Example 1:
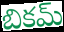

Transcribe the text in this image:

బికమ్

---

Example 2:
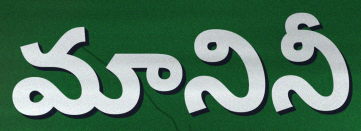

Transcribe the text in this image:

మానినీ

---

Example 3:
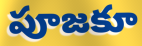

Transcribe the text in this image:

పూజకూ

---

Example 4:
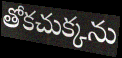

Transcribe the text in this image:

తోకచుక్కను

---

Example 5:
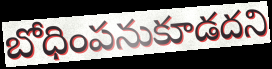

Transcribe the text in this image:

బోధింపనుకూడదని